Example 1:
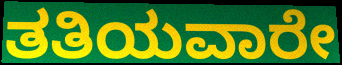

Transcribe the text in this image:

ತತಿಯವಾರೇ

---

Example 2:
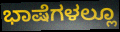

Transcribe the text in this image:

ಭಾಷೆಗಳಲ್ಲೂ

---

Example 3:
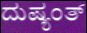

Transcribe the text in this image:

ದುಷ್ಯಂತ್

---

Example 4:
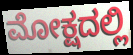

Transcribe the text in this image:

ಮೋಕ್ಷದಲ್ಲಿ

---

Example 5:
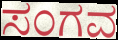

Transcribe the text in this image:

ಸಂಗವ